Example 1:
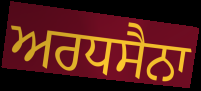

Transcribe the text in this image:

ਅਰਧਸੈਨਾ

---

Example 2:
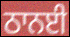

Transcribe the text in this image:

ਠਾਨਈ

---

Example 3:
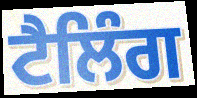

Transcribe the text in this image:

ਟੈਲਿੰਗ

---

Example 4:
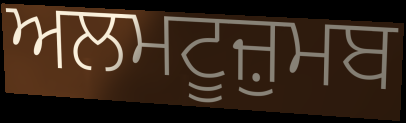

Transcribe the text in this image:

ਅਲਮਟੂਜ਼ੁਮਬ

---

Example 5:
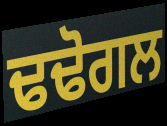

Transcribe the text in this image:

ਢਢੋਗਲ